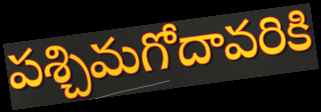
పశ్చిమగోదావరికి